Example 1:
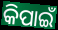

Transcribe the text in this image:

କିପାଇଁ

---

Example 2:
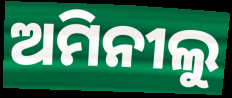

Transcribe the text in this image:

ଅମିନୀଲୁ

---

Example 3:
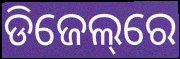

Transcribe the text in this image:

ଡିଜେଲ୍‌ରେ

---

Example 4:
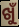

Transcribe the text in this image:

ଖୁଁ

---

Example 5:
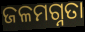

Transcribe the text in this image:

ଜଳମଗ୍ନତା